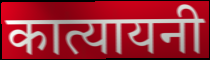
कात्यायनी